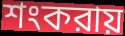
শংকরায়